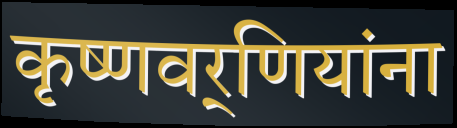
कृष्णवर्णियांना